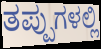
ತಪ್ಪುಗಳಲ್ಲಿ